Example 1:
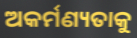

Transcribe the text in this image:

ଅକର୍ମଣ୍ୟତାକୁ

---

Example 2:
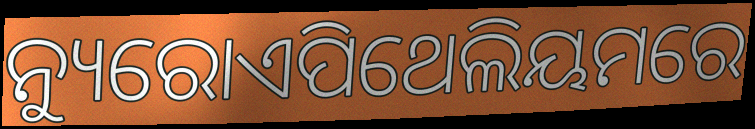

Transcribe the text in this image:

ନ୍ୟୁରୋଏପିଥେଲିୟମରେ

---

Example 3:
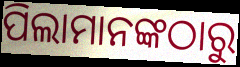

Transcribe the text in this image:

ପିଲାମାନଙ୍କଠାରୁ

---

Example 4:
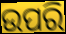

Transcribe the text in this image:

ଉପରି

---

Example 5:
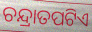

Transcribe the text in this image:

ଚନ୍ଦ୍ରାତପଟିଏ